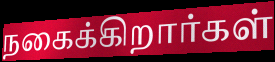
நகைக்கிறார்கள்